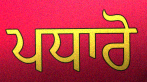
ਪਧਾਰੋ